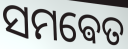
ସମଵେତ